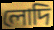
লোদি